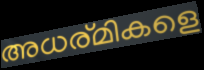
അധര്മികളെ